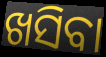
ଖସିବା